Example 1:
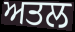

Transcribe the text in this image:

ਅਤਲ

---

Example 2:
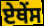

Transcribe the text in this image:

ਏਥੇੰਸ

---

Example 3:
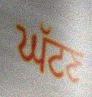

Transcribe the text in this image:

ਘੱਟਣ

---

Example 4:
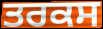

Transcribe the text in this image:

ਤਰਕਸ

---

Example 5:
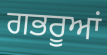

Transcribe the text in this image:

ਗਭਰੂਆਂ